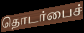
தொடர்பைச்